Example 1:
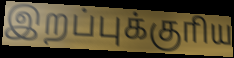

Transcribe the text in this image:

இறப்புக்குரிய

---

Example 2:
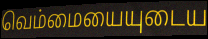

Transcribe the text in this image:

வெம்மையையுடைய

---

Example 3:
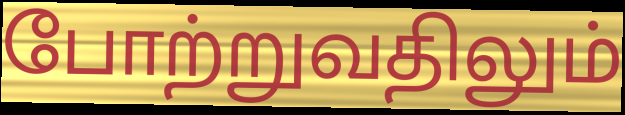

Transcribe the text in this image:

போற்றுவதிலும்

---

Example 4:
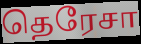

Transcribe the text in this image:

தெரேசா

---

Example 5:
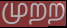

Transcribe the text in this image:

முறற